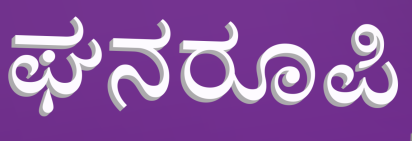
ಘನರೂಪಿ